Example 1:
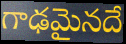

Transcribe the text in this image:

గాఢమైనదే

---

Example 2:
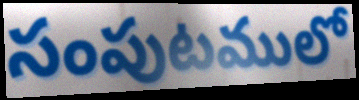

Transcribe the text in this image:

సంపుటములో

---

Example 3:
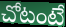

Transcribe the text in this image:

చోటంటే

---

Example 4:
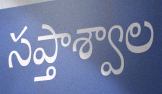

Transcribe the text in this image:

సప్తాశ్వాల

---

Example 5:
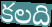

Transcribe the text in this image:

కలది